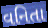
વનિતા